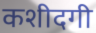
कशीदगी